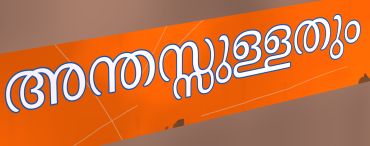
അന്തസ്സുള്ളതും